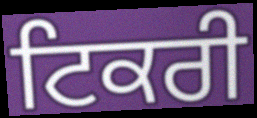
ਟਿਕਰੀ